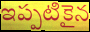
ఇప్పటికైన